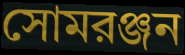
সোমরঞ্জন